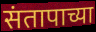
संतापाच्या